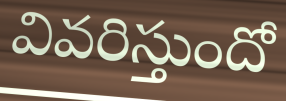
వివరిస్తుందో